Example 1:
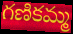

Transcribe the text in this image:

గణికమ్మ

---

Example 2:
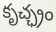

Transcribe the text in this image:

కృచ్ఛ్రం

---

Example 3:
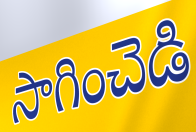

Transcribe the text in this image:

సాగించెడి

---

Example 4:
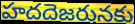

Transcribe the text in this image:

హదదెజరునకు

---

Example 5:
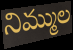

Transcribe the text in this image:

నిమ్ముల